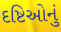
દષ્ટિઓનું